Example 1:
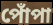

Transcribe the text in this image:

পোঁপা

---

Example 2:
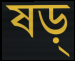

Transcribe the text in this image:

ষড়্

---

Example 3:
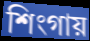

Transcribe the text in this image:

শিংগায়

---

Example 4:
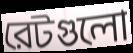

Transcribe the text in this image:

রেটগুলো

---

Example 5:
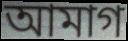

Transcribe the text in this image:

আমাগ